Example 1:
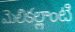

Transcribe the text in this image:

మెలికల్లాంటి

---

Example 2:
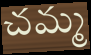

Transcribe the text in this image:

చమ్మ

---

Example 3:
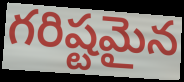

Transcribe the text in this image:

గరిష్టమైన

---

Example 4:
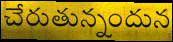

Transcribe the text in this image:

చేరుతున్నందున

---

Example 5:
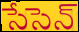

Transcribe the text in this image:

సేసెన్